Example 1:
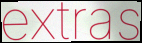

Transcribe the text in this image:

extras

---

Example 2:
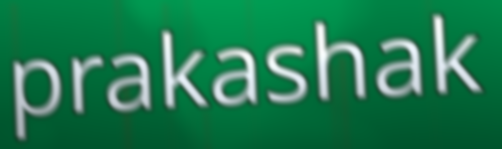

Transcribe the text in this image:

prakashak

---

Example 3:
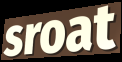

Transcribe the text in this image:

sroat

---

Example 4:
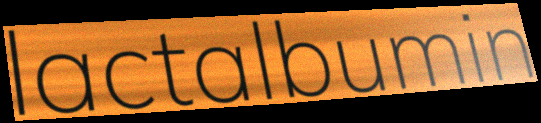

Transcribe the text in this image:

lactalbumin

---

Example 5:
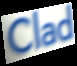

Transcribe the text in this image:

Clad